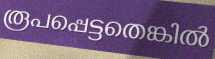
രൂപപ്പെട്ടതെങ്കിൽ